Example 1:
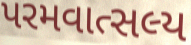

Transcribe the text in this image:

પરમવાત્સલ્ય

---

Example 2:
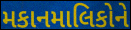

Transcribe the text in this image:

મકાનમાલિકોને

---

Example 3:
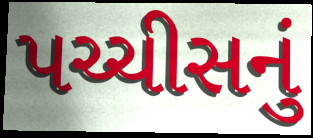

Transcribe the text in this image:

પચ્ચીસનું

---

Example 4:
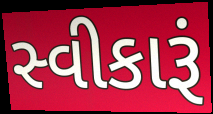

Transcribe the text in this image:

સ્વીકારૂં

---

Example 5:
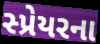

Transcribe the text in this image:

સ્પ્રેયરના